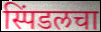
स्पिंडलचा